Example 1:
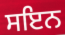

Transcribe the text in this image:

ਸਇਨ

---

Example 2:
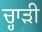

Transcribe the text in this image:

ਚ੍ਹਾੜੀ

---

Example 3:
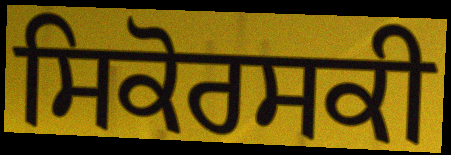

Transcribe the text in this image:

ਸਿਕੋਰਸਕੀ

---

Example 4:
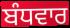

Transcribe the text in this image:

ਬੰਧਵਾਰ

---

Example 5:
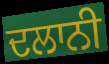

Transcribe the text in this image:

ਦਲਾਨੀ